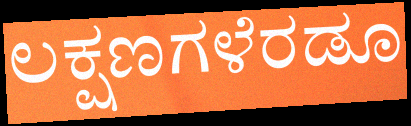
ಲಕ್ಷಣಗಳೆರಡೂ